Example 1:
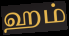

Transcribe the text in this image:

ஹம்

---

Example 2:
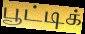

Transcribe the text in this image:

பூட்டிக்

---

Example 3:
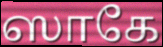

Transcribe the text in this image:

ஸாகே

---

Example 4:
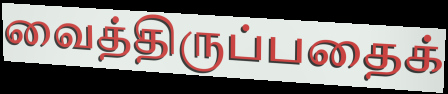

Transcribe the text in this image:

வைத்திருப்பதைக்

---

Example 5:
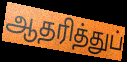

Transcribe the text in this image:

ஆதரித்துப்